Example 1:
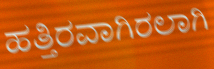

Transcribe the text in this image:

ಹತ್ತಿರವಾಗಿರಲಾಗಿ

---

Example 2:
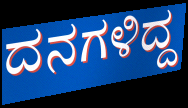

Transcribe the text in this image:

ದನಗಳಿದ್ದ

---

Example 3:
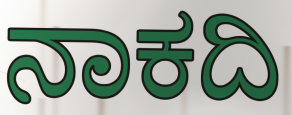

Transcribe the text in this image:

ನಾಕದಿ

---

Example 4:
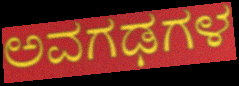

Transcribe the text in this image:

ಅವಗಢಗಳ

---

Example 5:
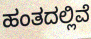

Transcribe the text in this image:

ಹಂತದಲ್ಲಿವೆ